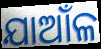
ଯାଆଁଳ